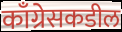
काँग्रेसकडील